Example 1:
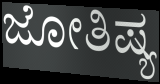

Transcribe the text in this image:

ಜೋತಿಷ್ಯ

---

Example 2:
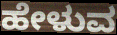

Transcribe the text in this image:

ಹೇಳುವ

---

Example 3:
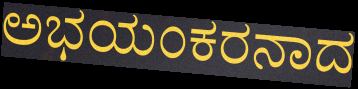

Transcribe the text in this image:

ಅಭಯಂಕರನಾದ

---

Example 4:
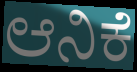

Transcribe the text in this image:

ಆನಿಕೆ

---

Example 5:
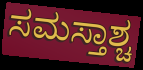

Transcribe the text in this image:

ಸಮಸ್ತಾಶ್ಚ